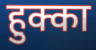
हुक्का